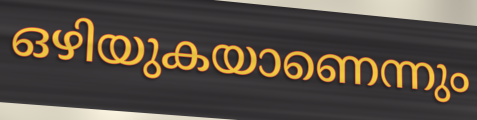
ഒഴിയുകയാണെന്നും